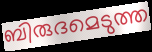
ബിരുദമെടുത്ത